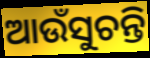
ଆଉଁସୁଚନ୍ତି